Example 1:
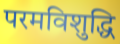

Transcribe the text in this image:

परमविशुद्धि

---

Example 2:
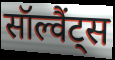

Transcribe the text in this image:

सॉल्वैंट्स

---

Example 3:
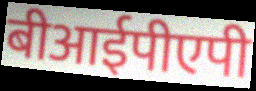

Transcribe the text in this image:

बीआईपीएपी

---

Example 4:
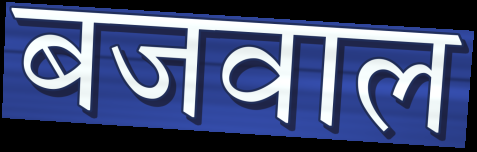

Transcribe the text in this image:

बजवाल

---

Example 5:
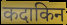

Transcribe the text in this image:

कदाकिन